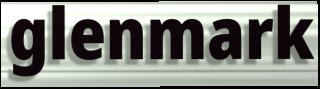
glenmark